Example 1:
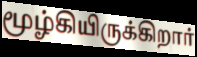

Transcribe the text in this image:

மூழ்கியிருக்கிறார்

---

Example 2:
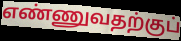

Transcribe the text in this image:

எண்ணுவதற்குப்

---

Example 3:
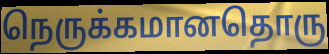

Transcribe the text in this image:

நெருக்கமானதொரு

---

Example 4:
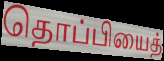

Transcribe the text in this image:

தொப்பியைத்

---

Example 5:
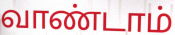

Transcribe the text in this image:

வாண்டாம்